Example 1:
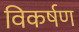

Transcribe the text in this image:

विकर्षण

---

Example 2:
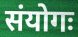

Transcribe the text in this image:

संयोगः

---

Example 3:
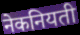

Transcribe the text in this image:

नेकनियती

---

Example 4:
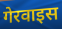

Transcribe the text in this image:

गेरवाइस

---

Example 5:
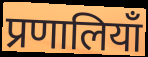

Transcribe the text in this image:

प्रणालियाँ